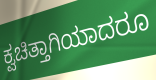
ಕ್ವಚಿತ್ತಾಗಿಯಾದರೂ